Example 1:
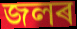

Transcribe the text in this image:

জলৰ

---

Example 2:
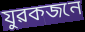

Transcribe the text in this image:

যুৱকজনে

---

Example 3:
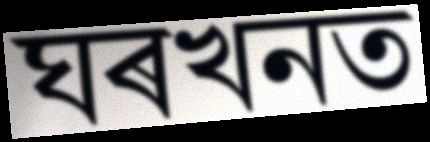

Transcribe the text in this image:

ঘৰখনত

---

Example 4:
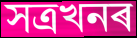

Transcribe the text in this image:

সত্ৰখনৰ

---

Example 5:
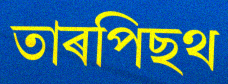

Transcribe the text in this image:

তাৰপিছথ